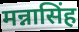
मन्नासिंह